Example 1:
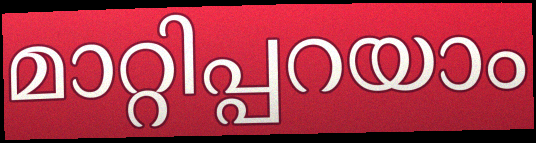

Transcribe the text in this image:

മാറ്റിപ്പറയാം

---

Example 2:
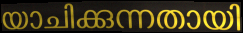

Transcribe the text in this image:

യാചിക്കുന്നതായി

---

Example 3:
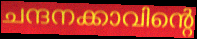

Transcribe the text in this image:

ചന്ദനക്കാവിന്റെ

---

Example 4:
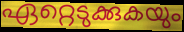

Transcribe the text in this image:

ഏറ്റെടുക്കുകയും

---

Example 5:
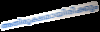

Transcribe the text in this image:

അതിരൂക്ഷമായിരിക്കും